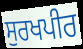
ਸੁਰਖਪੀਰ